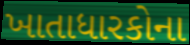
ખાતાધારકોના